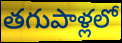
తగుపాళ్లలో